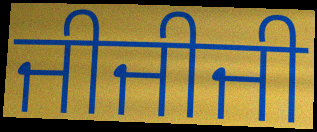
ਜੀਜੀਜੀ